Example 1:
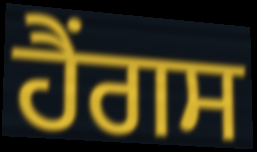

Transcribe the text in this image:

ਹੈਂਗਸ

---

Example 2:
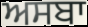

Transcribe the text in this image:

ਅਸਬਾ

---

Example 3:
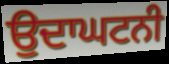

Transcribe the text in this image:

ਉਦਾਘਟਨੀ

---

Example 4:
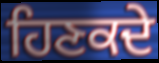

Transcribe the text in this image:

ਹਿਣਕਦੇ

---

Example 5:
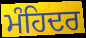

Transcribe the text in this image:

ਮੰਹਿਦਰ